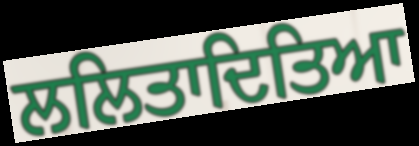
ਲਲਿਤਾਦਿਤਿਆ